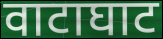
वाटाघाट